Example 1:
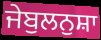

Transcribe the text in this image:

ਜੇਬੁਲਨੁਸ਼ਾ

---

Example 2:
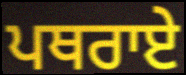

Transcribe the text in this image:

ਪਥਰਾਏ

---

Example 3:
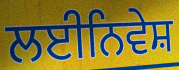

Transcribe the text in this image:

ਲਈਨਿਵੇਸ਼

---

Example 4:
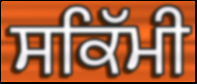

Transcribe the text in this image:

ਸਕਿੱਮੀ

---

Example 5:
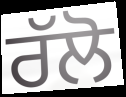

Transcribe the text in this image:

ਰੱਲੋ